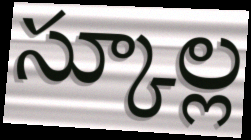
స్కూల్ల